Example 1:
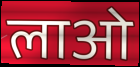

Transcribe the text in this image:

लाओ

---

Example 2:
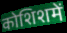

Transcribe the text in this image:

कोशिशमें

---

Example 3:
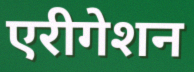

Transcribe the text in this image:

एरीगेशन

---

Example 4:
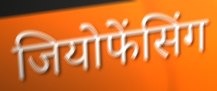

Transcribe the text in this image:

जियोफेंसिंग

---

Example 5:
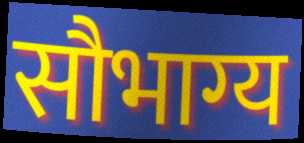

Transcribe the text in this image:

सौभाग्य